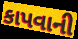
કાપવાની